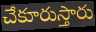
చేకూరుస్తారు